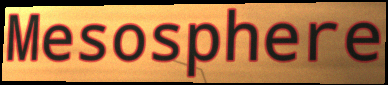
Mesosphere